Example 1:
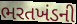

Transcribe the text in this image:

ભરતખંડની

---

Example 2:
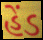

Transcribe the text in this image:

હેંડ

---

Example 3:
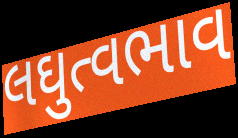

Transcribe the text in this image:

લઘુત્વભાવ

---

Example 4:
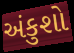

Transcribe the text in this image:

અંકુશો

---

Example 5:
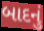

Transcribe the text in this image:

બાદનું